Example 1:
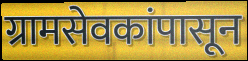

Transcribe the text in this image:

ग्रामसेवकांपासून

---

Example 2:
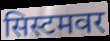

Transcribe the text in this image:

सिस्टमवर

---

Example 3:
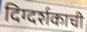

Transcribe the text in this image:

दिग्दर्शकाची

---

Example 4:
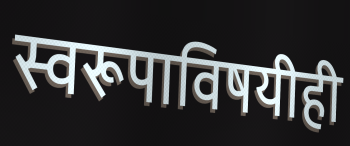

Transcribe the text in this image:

स्वरूपाविषयीही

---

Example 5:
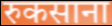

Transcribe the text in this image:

रुकसाना